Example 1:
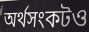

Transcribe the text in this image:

অর্থসংকটও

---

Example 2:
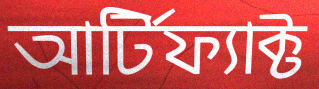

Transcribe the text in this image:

আর্টিফ্যাক্ট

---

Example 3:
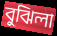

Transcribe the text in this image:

বুঝিলা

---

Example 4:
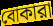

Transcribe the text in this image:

বোকারা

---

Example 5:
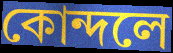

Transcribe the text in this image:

কোন্দলে